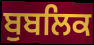
ਬੁਬਲਿਕ